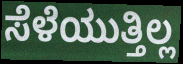
ಸೆಳೆಯುತ್ತಿಲ್ಲ